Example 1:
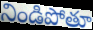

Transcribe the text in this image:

నిండిపోతూ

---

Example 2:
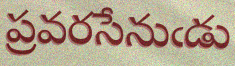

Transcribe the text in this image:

ప్రవరసేనుఁడు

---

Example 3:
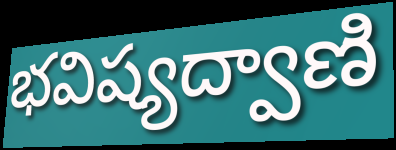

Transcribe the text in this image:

భవిష్యద్వాణి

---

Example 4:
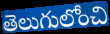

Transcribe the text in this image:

తెలుగులోంచి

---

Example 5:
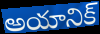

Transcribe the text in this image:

అయానిక్